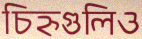
চিহ্নগুলিও